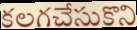
కలగచేసుకొని